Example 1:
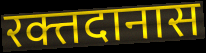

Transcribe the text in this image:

रक्तदानास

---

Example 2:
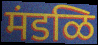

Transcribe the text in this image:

मंडळि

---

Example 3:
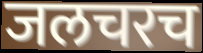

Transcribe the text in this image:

जलचरच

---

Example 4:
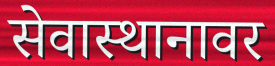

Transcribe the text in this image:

सेवास्थानावर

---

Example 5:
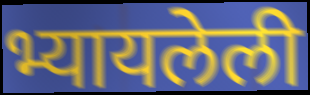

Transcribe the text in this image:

भ्यायलेली